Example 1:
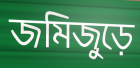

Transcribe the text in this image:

জমিজুড়ে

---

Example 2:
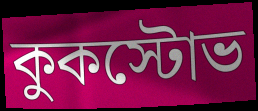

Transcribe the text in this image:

কুকস্টোভ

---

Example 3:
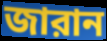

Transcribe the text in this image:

জারান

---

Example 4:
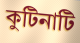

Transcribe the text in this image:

কুটিনাটি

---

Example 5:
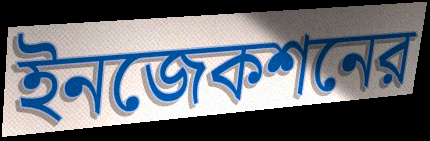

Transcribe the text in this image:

ইনজেকশনের